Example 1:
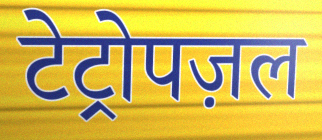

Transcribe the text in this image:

टेट्रोपज़ल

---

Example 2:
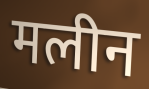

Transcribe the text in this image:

मलीन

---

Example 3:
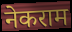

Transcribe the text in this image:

नेकराम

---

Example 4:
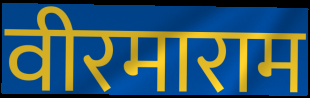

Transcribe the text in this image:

वीरमाराम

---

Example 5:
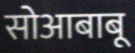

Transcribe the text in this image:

सोआबाबू